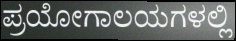
ಪ್ರಯೋಗಾಲಯಗಳಲ್ಲಿ